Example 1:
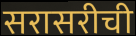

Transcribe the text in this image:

सरासरीची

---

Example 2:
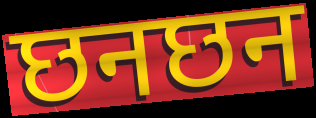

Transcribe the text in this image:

छनछन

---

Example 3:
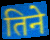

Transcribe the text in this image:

तिने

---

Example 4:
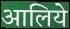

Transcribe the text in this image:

आलिये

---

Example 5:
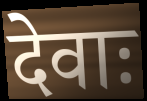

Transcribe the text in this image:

देवाः